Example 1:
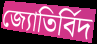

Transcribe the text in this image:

জ্যোতিৰ্বিদ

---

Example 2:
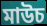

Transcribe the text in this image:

মাউচ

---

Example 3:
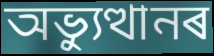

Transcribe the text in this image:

অভ্যুত্থানৰ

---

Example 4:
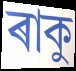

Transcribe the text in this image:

ৰাকু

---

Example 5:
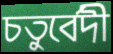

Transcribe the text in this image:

চতুৰ্বেদী